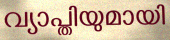
വ്യാപ്തിയുമായി